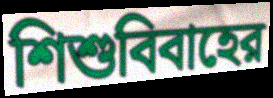
শিশুবিবাহের